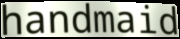
handmaid